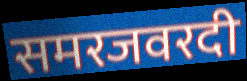
समरजवरदी